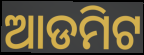
ଆଡମିଟ